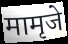
मामृजे